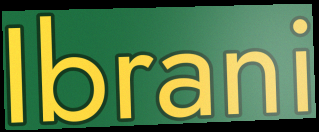
Ibrani